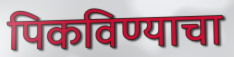
पिकविण्याचा